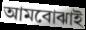
আমবোঝাই